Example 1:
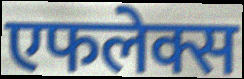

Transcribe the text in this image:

एफलेक्स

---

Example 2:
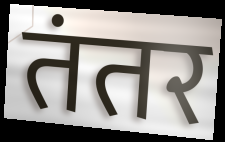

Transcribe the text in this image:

तंतर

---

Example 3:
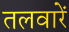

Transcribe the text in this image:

तलवारें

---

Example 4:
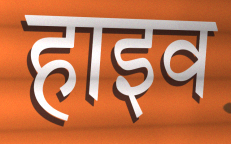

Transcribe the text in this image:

हाइव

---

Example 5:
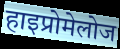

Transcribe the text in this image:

हाइप्रोमेलोज